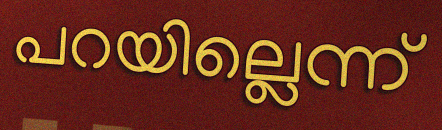
പറയില്ലെന്ന്